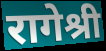
रागेश्री